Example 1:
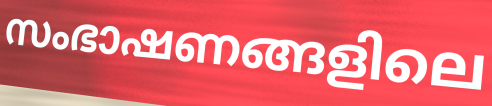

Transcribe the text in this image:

സംഭാഷണങ്ങളിലെ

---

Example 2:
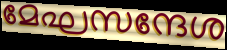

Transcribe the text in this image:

മേഘസന്ദേശ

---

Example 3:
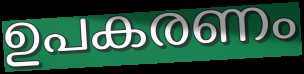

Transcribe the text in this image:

ഉപകരണം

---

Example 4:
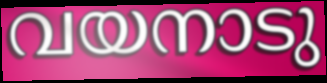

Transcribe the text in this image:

വയനാടു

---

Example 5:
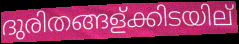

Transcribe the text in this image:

ദുരിതങ്ങള്ക്കിടയില്